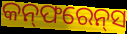
କନ୍‌ଫରେନ୍‌ସ